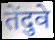
तेंदुवे